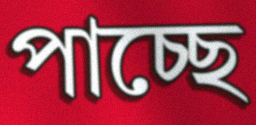
পাচ্ছে